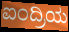
ಐಂದ್ರಿಯ